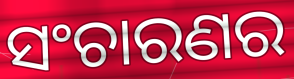
ସଂଚାରଣର